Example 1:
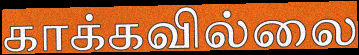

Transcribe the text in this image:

காக்கவில்லை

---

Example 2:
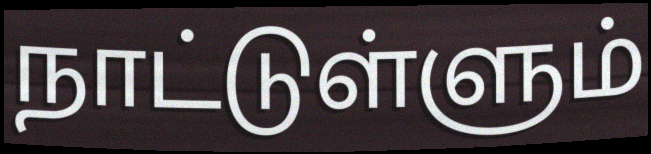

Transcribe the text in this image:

நாட்டுள்ளும்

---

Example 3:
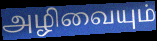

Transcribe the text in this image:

அழிவையும்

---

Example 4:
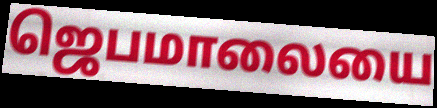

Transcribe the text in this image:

ஜெபமாலையை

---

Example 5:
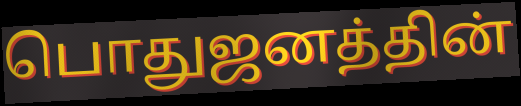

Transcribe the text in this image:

பொதுஜனத்தின்